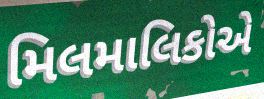
મિલમાલિકોએ